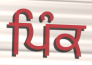
ਪਿੰਕ